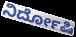
ನಿರ್ದೋಷಿ